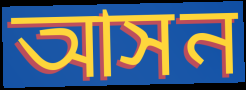
আসন